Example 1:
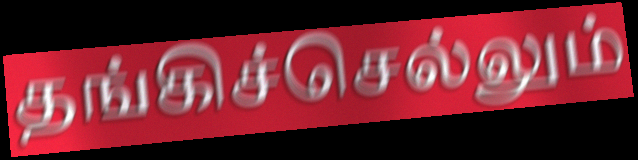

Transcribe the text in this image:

தங்கிச்செல்லும்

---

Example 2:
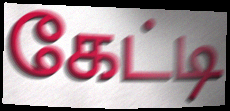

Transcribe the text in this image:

கேட்டி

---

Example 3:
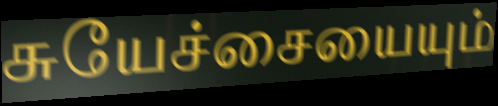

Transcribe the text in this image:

சுயேச்சையையும்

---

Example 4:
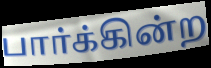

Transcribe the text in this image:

பார்க்கின்ற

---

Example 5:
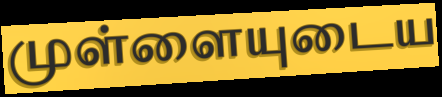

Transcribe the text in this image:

முள்ளையுடைய